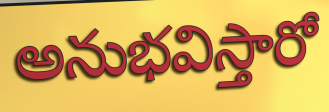
అనుభవిస్తారో